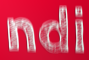
ndi